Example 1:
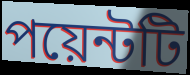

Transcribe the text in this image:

পয়েন্টটি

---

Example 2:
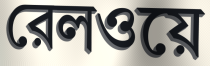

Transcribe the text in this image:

রেলওয়ে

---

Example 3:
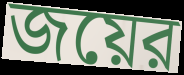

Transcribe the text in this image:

জয়ের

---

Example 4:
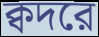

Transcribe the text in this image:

ক্বদরে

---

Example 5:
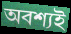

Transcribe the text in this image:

অবশ্যই